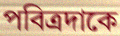
পবিত্রদাকে